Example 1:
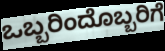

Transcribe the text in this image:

ಒಬ್ಬರಿಂದೊಬ್ಬರಿಗೆ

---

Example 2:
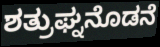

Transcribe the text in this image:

ಶತ್ರುಘ್ನನೊಡನೆ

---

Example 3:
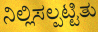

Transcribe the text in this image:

ನಿಲ್ಲಿಸಲ್ಪಟ್ಟಿತು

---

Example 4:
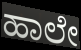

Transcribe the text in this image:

ಹಾಲೇ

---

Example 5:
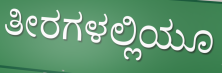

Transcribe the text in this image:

ತೀರಗಳಲ್ಲಿಯೂ